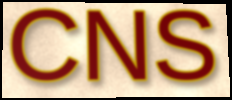
CNS